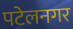
पटेलनगर